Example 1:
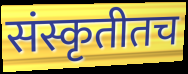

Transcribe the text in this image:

संस्कृतीतच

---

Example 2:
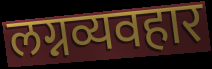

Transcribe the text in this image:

लग्नव्यवहार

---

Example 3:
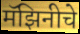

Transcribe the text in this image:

मॅझिनीचे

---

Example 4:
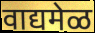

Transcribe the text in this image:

वाद्यमेळ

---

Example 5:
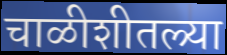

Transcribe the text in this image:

चाळीशीतल्या